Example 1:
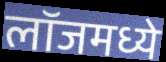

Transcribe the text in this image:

लॉजमध्ये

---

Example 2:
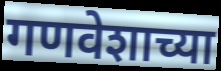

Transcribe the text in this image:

गणवेशाच्या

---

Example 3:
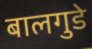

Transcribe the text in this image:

बालगुडे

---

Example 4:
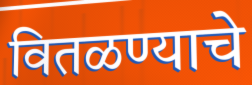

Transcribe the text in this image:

वितळण्याचे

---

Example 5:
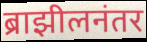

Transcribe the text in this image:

ब्राझीलनंतर